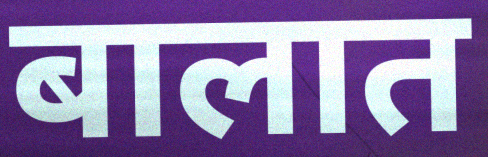
बालात